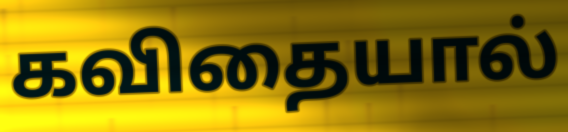
கவிதையால்